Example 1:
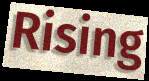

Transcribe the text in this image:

Rising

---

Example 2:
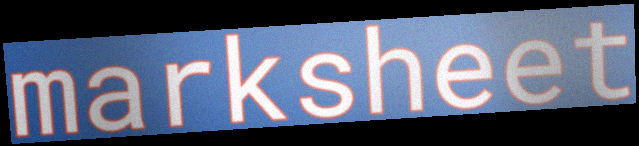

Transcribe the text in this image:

marksheet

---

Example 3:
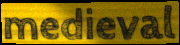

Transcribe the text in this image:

medieval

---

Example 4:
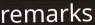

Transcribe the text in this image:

remarks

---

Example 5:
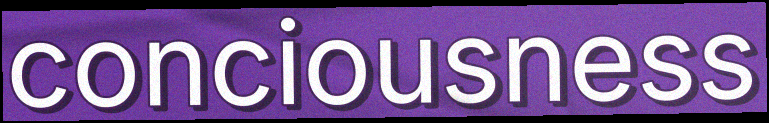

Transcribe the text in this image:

conciousness